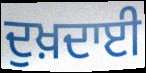
ਦੁਖ਼ਦਾਈ